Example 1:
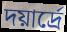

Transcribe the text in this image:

দয়ার্দ্রে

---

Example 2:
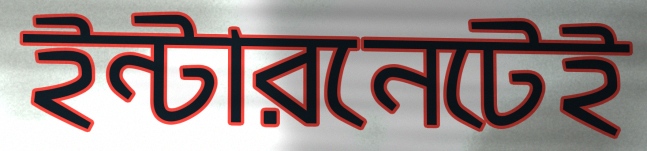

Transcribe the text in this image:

ইন্টারনেটেই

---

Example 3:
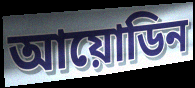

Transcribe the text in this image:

আয়োডিন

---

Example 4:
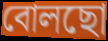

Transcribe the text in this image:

বোলছো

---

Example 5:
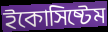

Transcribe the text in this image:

ইকোসিষ্টেম